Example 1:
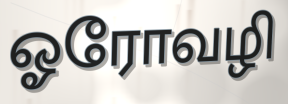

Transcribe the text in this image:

ஓரோவழி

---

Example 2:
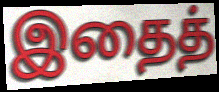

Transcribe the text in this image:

இதைத்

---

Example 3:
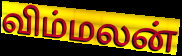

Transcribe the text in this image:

விம்மலன்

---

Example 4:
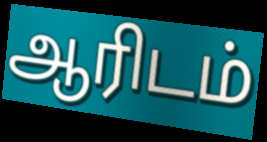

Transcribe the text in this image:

ஆரிடம்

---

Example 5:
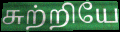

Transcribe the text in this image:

சுற்றியே